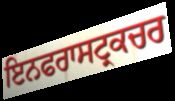
ਇਨਫਰਾਸਟ੍ਰਕਚਰ